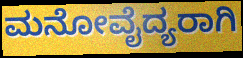
ಮನೋವೈದ್ಯರಾಗಿ